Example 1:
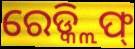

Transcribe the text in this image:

ରେଡ୍କ୍ଲିଫ୍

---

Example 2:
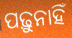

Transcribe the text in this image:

ପଢ଼ୁନାହିଁ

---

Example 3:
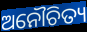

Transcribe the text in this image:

ଅନୌଚିତ୍ୟ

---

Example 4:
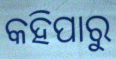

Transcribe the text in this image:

କହିପାରୁ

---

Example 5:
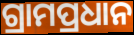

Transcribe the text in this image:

ଗ୍ରାମପ୍ରଧାନ